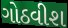
ગોઠવીશ